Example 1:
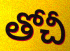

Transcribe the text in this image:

తోచీ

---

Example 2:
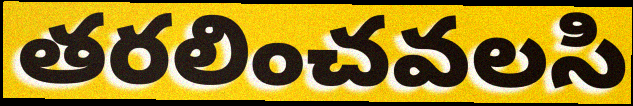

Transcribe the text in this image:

తరలించవలసి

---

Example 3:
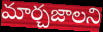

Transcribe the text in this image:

మార్చజాలని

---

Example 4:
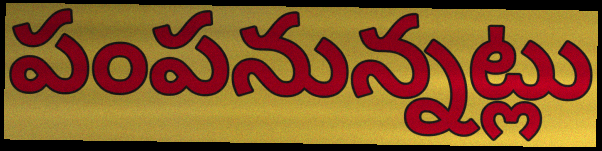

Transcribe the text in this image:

పంపనున్నట్లు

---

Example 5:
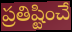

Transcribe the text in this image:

ప్రతిష్టించే